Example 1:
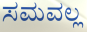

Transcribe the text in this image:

ಸಮವಲ್ಲ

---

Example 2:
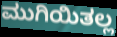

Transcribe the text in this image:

ಮುಗಿಯಿತಲ್ಲ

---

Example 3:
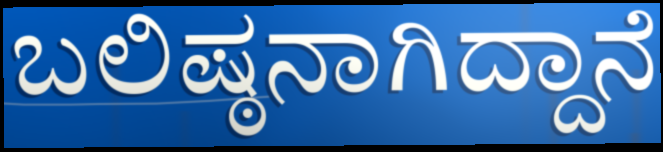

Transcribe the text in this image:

ಬಲಿಷ್ಠನಾಗಿದ್ದಾನೆ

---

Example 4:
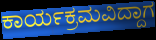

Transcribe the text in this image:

ಕಾರ್ಯಕ್ರಮವಿದ್ದಾಗ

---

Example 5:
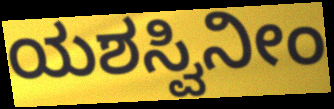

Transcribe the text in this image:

ಯಶಸ್ವಿನೀಂ